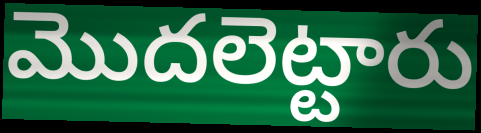
మొదలెట్టారు